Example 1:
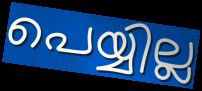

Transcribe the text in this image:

പെയ്യില്ല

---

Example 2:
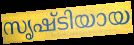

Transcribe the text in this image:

സൃഷ്ടിയായ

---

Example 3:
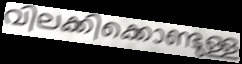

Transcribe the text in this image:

വിലക്കിക്കൊണ്ടുള്ള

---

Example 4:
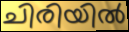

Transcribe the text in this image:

ചിരിയിൽ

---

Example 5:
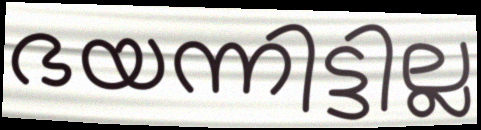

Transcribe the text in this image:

ഭയന്നിട്ടില്ല